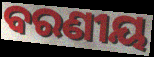
ବରଣୀୟ